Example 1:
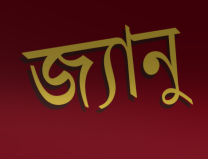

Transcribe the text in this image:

জ্যানু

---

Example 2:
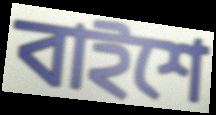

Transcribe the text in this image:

বাইশে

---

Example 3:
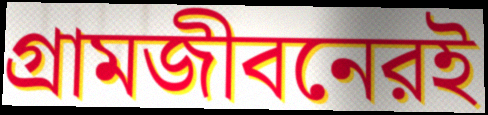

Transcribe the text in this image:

গ্রামজীবনেরই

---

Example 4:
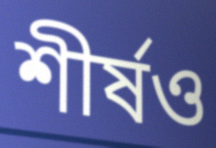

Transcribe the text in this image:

শীর্ষও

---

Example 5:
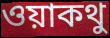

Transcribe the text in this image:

ওয়াকথু